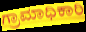
ಗ್ರಾಮಾಧಿಕಾರಿ